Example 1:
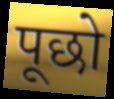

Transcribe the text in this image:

पूछो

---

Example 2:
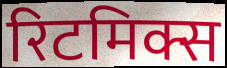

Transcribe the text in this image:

रिटमिक्स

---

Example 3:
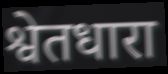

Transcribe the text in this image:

श्वेतधारा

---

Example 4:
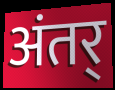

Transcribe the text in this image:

अंतर्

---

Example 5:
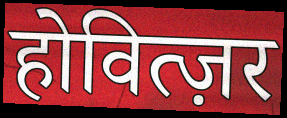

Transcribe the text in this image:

होवित्ज़र